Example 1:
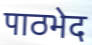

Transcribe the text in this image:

पाठभेद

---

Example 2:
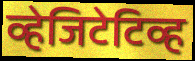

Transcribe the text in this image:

व्हेजिटेटिव्ह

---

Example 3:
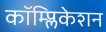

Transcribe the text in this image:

कॉम्प्लिकेशन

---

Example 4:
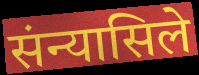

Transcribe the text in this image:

संन्यासिले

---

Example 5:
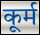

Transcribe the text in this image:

कूर्म